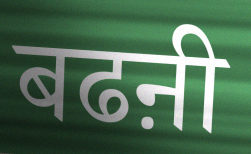
बढऩी